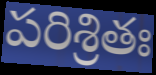
పరిశ్రితః